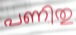
പണിതു